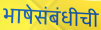
भाषेसंबंधीची